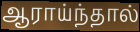
ஆராய்ந்தால்